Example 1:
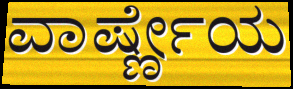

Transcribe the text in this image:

ವಾರ್ಷ್ಣೇಯ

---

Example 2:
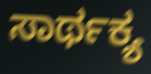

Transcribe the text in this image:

ಸಾರ್ಥಕ್ಯ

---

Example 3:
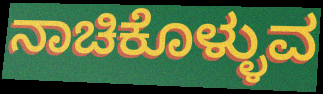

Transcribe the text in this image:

ನಾಚಿಕೊಳ್ಳುವ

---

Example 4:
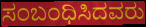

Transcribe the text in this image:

ಸಂಬಂಧಿಸಿದವರು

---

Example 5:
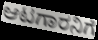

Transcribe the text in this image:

ಆಟಗಾರನಿಗೆ